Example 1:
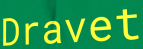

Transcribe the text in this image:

Dravet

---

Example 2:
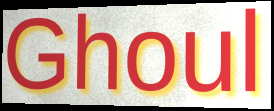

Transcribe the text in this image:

Ghoul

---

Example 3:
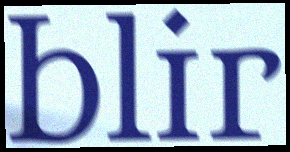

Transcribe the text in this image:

blir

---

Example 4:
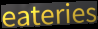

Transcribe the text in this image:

eateries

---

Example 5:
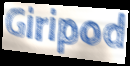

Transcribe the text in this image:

Giripod